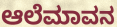
ಆಲೆಮಾವನ